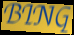
BING